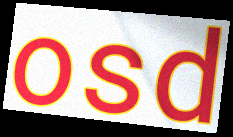
osd